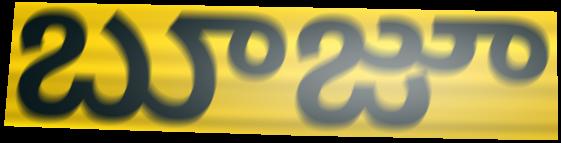
బూజూ